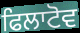
ਫਿਲਾਟੋਵ